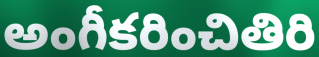
అంగీకరించితిరి